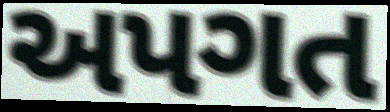
અપગત